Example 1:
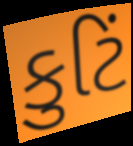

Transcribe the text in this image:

કુટિં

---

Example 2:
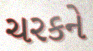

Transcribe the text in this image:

ચરકને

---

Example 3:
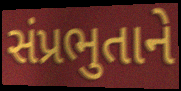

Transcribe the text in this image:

સંપ્રભુતાને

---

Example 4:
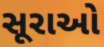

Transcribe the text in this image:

સૂરાઓ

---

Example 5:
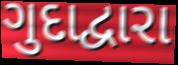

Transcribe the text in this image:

ગુદાદ્વારા